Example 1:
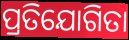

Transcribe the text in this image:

ପ୍ରତିଯୋଗିତା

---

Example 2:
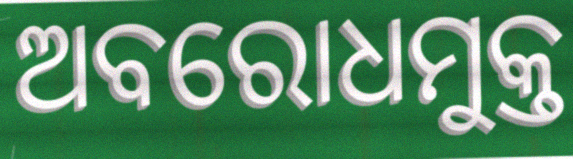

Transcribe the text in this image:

ଅବରୋଧମୁକ୍ତ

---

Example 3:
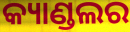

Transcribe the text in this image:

କ୍ୟାଣ୍ଡଲର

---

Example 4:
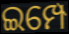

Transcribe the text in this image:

ଇମ୍ପେ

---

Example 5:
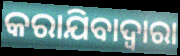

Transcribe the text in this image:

କରାଯିବାଦ୍ୱାରା